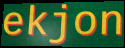
ekjon